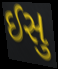
ઈસુ